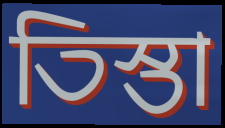
তিস্তা